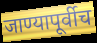
जाण्यापूर्वीच